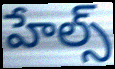
హేల్స్